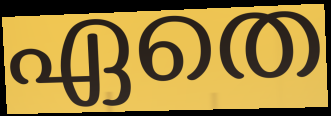
ഏതെ